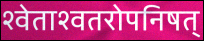
श्वेताश्वतरोपनिषत्